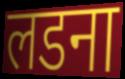
लडना